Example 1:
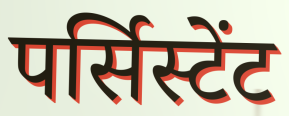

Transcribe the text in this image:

पर्सिस्टेंट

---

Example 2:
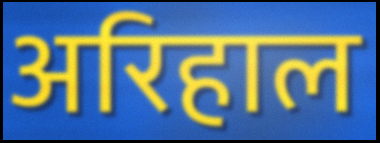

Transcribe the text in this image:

अरिहाल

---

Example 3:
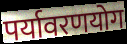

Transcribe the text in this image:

पर्यावरणयोग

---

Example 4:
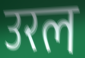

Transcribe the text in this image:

उरल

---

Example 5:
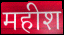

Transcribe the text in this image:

महीश